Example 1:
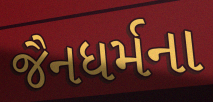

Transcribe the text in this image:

જૈનધર્મના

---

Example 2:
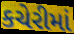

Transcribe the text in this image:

કચેરીમાં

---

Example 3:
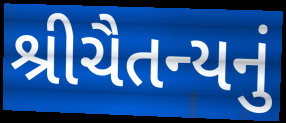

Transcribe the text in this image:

શ્રીચૈતન્યનું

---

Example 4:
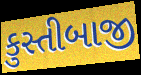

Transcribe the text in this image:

કુસ્તીબાજી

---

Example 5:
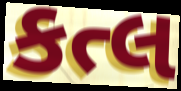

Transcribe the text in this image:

કત્લ